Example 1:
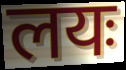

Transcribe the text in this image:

लयः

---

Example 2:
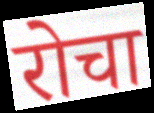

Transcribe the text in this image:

रोचा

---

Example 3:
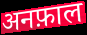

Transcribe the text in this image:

अनफ़ाल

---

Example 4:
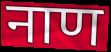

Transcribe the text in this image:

नाण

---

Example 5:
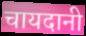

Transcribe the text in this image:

चायदानी